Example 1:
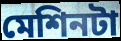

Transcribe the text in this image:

মেশিনটা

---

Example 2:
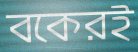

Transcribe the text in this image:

বকেরই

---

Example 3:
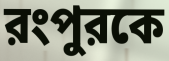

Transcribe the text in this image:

রংপুরকে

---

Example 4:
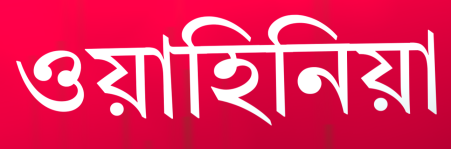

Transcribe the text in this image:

ওয়াহিনিয়া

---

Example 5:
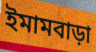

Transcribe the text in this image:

ইমামবাড়া